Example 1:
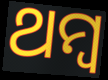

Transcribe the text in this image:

ଥମ୍ବ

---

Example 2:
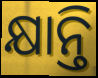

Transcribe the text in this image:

କ୍ଷାନ୍ତି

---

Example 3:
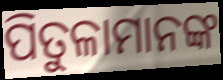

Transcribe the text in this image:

ପିତୁଳାମାନଙ୍କ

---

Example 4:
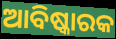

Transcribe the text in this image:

ଆବିଷ୍କାରକ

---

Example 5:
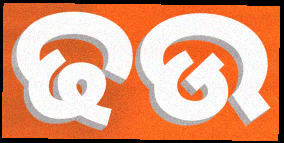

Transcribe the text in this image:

ଢଉ